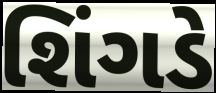
શિંગડે